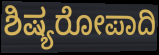
ಶಿಷ್ಯರೋಪಾದಿ